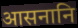
आसनानि